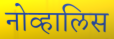
नोव्हालिस